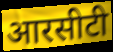
आरसीटी